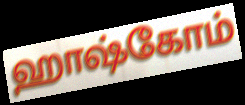
ஹாஷ்கோம்